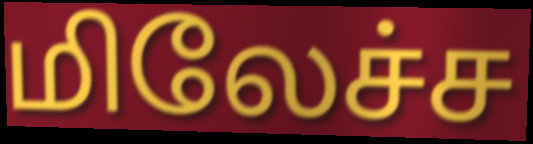
மிலேச்ச